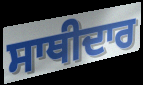
ਸਾਥੀਦਾਰ